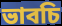
ভাবচি